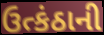
ઉત્કંઠાની